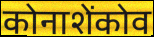
कोनाशेंकोव